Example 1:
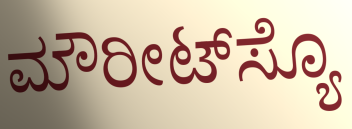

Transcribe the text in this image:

ಮೌರೀಟ್‌ಸ್ಯೊ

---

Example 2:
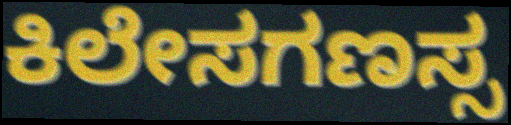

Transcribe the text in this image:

ಕಿಲೇಸಗಣಸ್ಸ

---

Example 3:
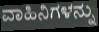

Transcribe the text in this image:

ವಾಹಿನಿಗಳನ್ನು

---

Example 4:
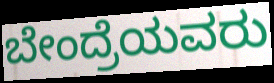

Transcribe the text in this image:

ಬೇಂದ್ರೆಯವರು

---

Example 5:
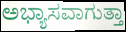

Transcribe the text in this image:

ಅಭ್ಯಾಸವಾಗುತ್ತಾ